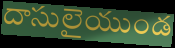
దాసులైయుండ